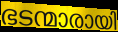
ഭടന്മാരായി